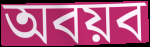
অবয়ব